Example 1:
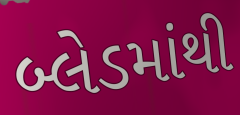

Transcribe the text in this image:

બ્લેડમાંથી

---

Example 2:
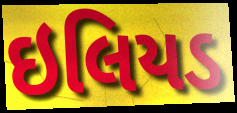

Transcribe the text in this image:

ઇલિયડ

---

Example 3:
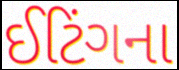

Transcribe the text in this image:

ઈટિંગના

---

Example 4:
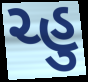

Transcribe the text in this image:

ચ્હુ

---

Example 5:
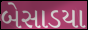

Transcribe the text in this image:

બેસાડયા